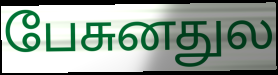
பேசுனதுல